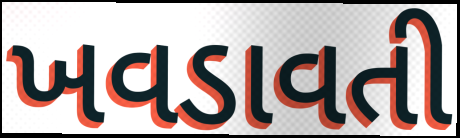
ખવડાવતી